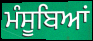
ਮੰਸੂਬਿਆਂ